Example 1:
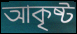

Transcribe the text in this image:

আকৃষ্ট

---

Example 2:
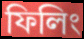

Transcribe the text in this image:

ফিলিং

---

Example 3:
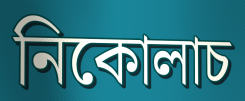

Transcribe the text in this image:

নিকোলাচ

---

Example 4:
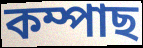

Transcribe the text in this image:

কম্পাছ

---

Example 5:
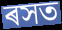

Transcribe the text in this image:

ৰসত